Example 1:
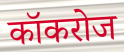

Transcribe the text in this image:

कॉकरोज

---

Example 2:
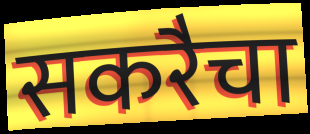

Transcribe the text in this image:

सकरैचा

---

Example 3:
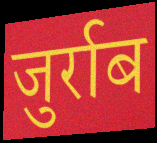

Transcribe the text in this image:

जुर्राब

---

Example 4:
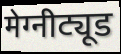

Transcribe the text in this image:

मेग्नीट्यूड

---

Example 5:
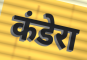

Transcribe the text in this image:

कंडेरा